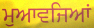
ਮੁਆਵਜਿਆਂ